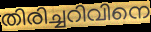
തിരിച്ചറിവിനെ